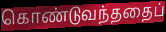
கொண்டுவந்ததைப்